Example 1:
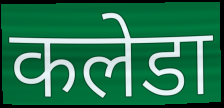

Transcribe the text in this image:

कलेडा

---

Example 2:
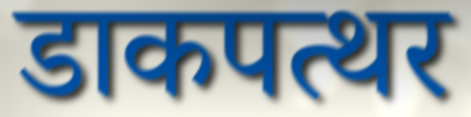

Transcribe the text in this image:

डाकपत्थर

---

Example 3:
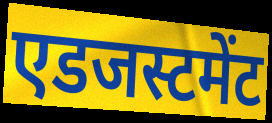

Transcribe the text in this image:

एडजस्टमेंट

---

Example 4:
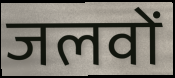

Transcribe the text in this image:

जलवों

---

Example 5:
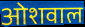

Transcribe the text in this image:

ओशवाल